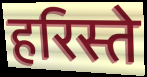
हरिस्ते